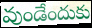
వుండేందుకు